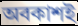
অবকাশই